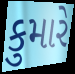
કુમારે